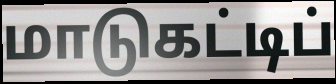
மாடுகட்டிப்